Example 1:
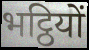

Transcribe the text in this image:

भट्ठियों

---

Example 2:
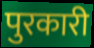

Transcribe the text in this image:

पुरकारी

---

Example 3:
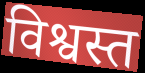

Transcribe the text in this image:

विश्वस्त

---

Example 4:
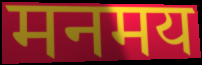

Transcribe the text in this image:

मनमय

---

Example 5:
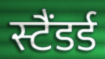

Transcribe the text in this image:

स्टैंडर्ड